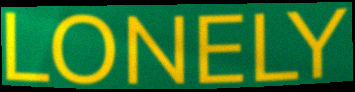
LONELY